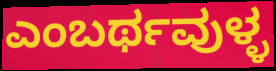
ಎಂಬರ್ಥವುಳ್ಳ